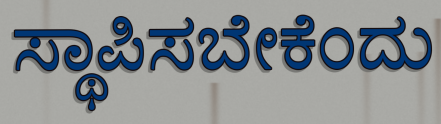
ಸ್ಥಾಪಿಸಬೇಕೆಂದು